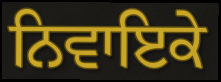
ਨਿਵਾਇਕੇ